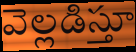
వెల్లడిస్తూ